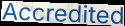
Accredited